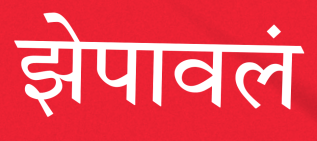
झेपावलं